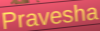
Pravesha